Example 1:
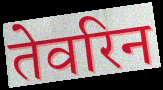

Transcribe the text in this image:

तेवरिन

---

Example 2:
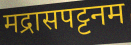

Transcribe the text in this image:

मद्रासपट्टनम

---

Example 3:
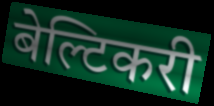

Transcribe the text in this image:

बेल्टिकरी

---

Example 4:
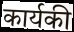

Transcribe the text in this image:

कार्यकी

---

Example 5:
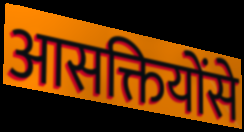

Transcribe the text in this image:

आसक्तियोंसे